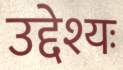
उद्देश्यः